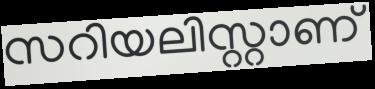
സറിയലിസ്റ്റാണ്